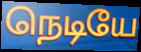
நெடியே